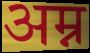
अम्न